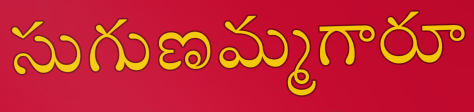
సుగుణమ్మగారూ